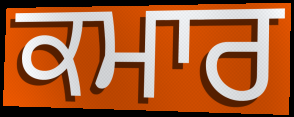
ਕਮਾਰ